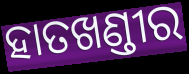
ହାତଖଣ୍ଡୀର